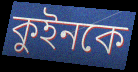
কুইনকে